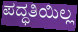
ಪದ್ಧತಿಯಿಲ್ಲ